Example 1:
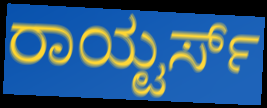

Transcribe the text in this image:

ರಾಯ್ಟರ್ಸ್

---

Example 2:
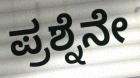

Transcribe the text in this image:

ಪ್ರಶ್ನೆನೇ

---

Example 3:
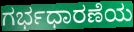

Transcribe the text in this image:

ಗರ್ಭಧಾರಣೆಯ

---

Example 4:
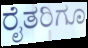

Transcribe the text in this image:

ರೈತರಿಗೂ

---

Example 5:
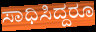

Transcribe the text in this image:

ಸಾಧಿಸಿದ್ದರೂ